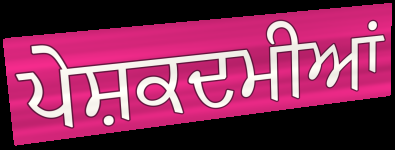
ਪੇਸ਼ਕਦਮੀਆਂ